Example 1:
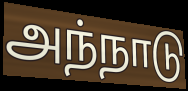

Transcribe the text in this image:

அந்நாடு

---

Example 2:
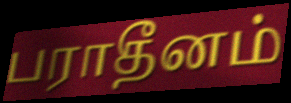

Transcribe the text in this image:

பராதீனம்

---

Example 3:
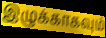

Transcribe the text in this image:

இழுக்காகவும்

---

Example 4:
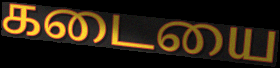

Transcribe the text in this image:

கடையை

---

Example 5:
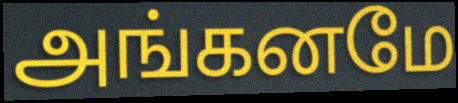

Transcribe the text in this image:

அங்கனமே